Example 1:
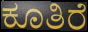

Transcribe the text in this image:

ಕೂತಿರೆ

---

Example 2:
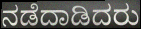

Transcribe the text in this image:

ನಡೆದಾಡಿದರು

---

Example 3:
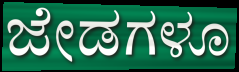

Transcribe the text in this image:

ಜೇಡಗಳೂ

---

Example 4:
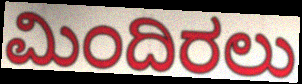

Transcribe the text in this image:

ಮಿಂದಿರಲು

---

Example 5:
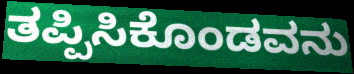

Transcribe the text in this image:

ತಪ್ಪಿಸಿಕೊಂಡವನು